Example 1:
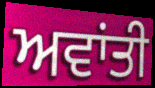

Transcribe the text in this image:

ਅਵਾਂਤੀ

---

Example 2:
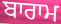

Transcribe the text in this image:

ਬਾਰਾਮ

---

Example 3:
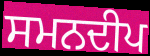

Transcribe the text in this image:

ਸਮਨਦੀਪ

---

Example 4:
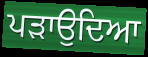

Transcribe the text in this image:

ਪੜਾਉਦਿਆ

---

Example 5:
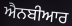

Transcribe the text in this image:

ਐਨਬੀਆਰ